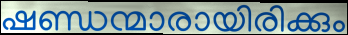
ഷണ്ഡന്മാരായിരിക്കും